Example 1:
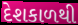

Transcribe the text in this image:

દેશકાળથી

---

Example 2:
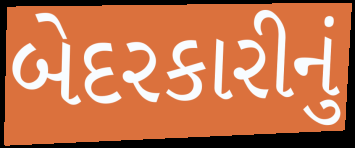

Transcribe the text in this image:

બેદરકારીનું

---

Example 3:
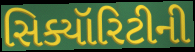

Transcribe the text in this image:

સિક્યૉરિટીની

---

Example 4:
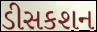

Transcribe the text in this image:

ડીસકશન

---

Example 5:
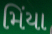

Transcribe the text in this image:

મિંયા